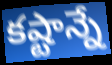
కష్టాన్నే